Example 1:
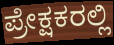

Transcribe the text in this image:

ಪ್ರೇಕ್ಷಕರಲ್ಲಿ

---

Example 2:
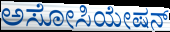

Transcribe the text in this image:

ಅಸೋಸಿಯೇಷನ್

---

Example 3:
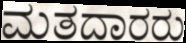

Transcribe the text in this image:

ಮತದಾರರು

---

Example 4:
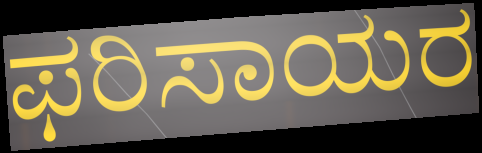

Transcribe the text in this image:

ಫರಿಸಾಯರ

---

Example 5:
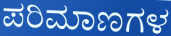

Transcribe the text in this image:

ಪರಿಮಾಣಗಳ